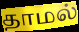
தாமல்